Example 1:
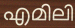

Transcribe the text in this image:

എമിലി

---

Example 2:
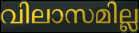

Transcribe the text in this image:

വിലാസമില്ല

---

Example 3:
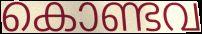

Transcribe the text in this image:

കൊണ്ടവ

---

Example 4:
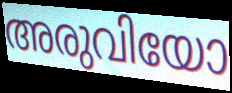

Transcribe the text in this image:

അരുവിയോ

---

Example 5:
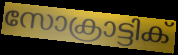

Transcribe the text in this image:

സോക്രാട്ടിക്